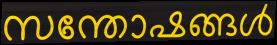
സന്തോഷങ്ങൾ